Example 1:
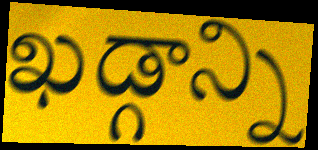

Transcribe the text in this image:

ఖడ్గాన్ని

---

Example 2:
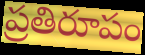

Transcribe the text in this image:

ప్రతిరూపం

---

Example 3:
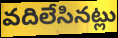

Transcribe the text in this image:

వదిలేసినట్లు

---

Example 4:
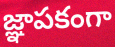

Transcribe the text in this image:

జ్ఞాపకంగా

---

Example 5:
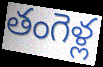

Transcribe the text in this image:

తంగెళ్ల